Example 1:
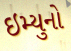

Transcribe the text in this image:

ઇમ્યુનો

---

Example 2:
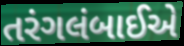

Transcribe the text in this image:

તરંગલંબાઈએ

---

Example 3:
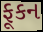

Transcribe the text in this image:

ફૂકન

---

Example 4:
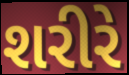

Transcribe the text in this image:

શરીરે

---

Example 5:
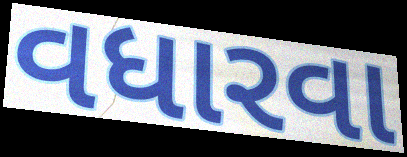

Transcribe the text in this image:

વધારવા